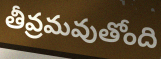
తీవ్రమవుతోంది